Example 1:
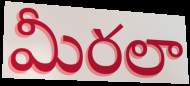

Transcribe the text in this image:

మీరలా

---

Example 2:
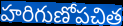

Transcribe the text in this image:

హరిగుణోపచిత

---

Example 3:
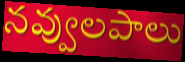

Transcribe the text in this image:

నవ్వులపాలు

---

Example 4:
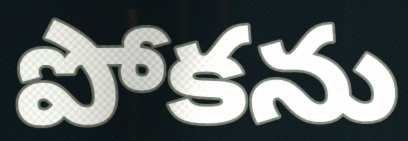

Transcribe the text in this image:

పోకను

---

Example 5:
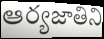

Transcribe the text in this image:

ఆర్యజాతిని